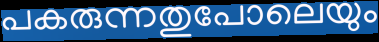
പകരുന്നതുപോലെയും